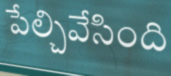
పేల్చివేసింది